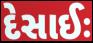
દેસાઈઃ